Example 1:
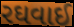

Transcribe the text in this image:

રઘવાઈ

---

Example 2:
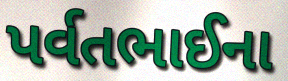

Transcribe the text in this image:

પર્વતભાઈના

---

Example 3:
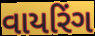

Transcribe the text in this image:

વાયરિંગ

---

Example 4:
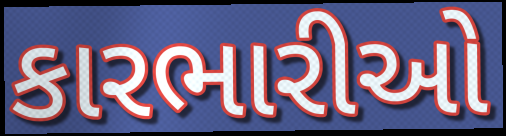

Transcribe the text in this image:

કારભારીઓ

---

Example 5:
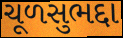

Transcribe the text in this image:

ચૂળસુભદ્દા